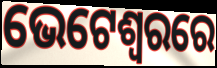
ଭେଟେଶ୍ୱରରେ